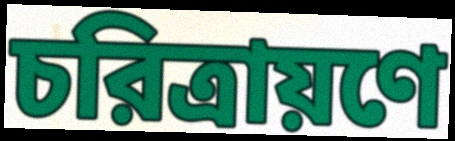
চরিত্রায়ণে